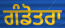
ਗੰਡੋਤਰਾ